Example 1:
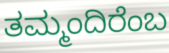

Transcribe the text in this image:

ತಮ್ಮಂದಿರೆಂಬ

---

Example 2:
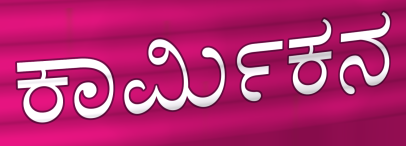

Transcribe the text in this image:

ಕಾರ್ಮಿಕನ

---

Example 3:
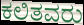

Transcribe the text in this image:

ಕಲಿತವರು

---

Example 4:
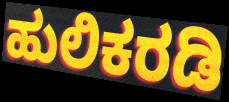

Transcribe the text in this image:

ಹುಲಿಕರಡಿ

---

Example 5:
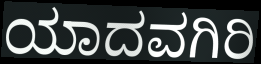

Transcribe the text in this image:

ಯಾದವಗಿರಿ